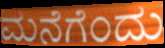
ಮನೆಗೆಂದು